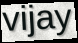
vijay